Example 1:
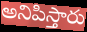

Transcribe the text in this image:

అనిపిస్తారు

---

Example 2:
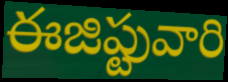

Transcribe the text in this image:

ఈజిప్టువారి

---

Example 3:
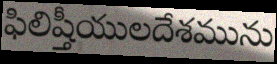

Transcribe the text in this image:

ఫిలిష్తీయులదేశమును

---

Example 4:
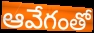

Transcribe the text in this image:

ఆవేగంతో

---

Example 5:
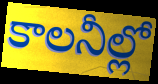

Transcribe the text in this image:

కాలనీల్లో